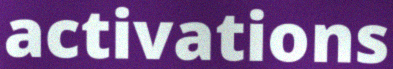
activations